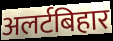
अलर्टबिहार